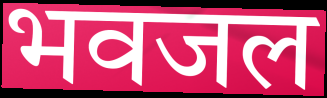
भवजल